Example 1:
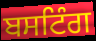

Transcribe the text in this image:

ਬਸਟਿੰਗ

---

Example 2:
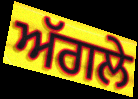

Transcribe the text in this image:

ਅੱਗਲੇ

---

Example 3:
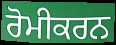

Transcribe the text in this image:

ਰੋਮੀਕਰਨ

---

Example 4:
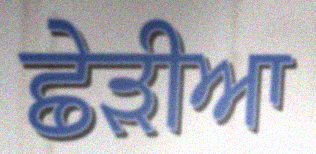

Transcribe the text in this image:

ਛੇੜੀਆ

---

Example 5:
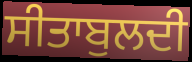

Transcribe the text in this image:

ਸੀਤਾਬੁਲਦੀ